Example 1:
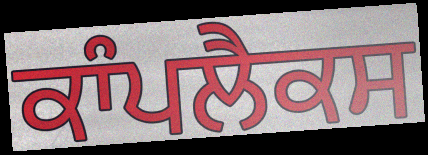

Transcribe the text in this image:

ਕਾੰਪਲੈਕਸ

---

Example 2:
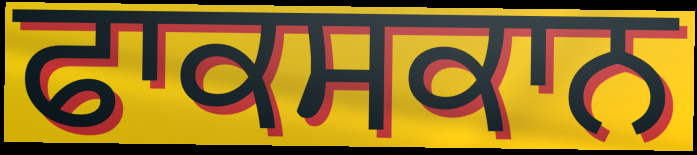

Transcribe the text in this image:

ਫਾਕਸਕਾਨ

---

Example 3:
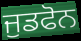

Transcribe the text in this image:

ਜੁਡਫੋਨ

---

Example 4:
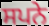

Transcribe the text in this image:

ਸਪਨੇ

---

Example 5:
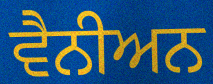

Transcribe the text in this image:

ਵੈਨੀਅਨ